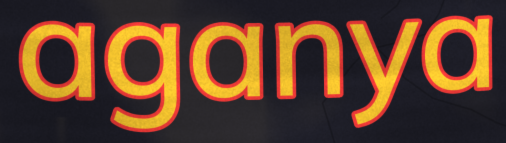
aganya